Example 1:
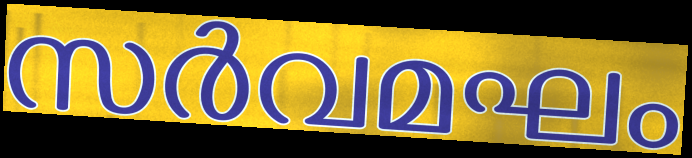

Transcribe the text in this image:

സർവമഘം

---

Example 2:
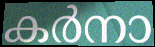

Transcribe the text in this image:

കർനാ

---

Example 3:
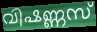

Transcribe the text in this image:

വിഷണ്ണസ്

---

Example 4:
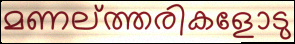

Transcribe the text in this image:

മണല്ത്തരികളോടു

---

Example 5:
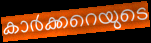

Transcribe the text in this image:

കാർക്കറെയുടെ